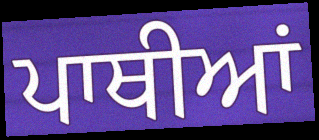
ਪਾਥੀਆਂ